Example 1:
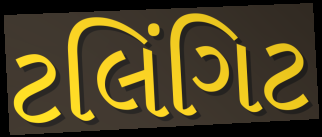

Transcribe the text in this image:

ટલિંગિટ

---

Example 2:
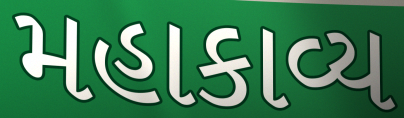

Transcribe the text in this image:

મહાકાવ્ય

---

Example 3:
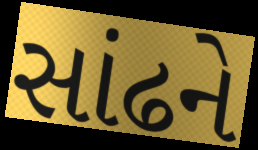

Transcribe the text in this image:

સાંઢને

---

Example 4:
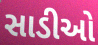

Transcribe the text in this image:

સાડીઓ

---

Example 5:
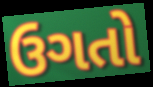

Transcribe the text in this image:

ઉગતો